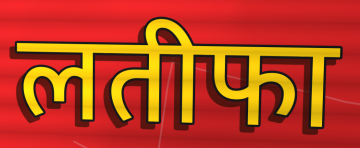
लतीफा